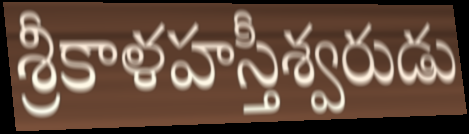
శ్రీకాళహస్తీశ్వరుడు